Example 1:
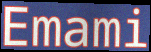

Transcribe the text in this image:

Emami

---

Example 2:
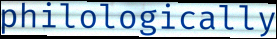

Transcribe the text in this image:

philologically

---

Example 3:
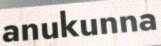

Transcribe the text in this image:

anukunna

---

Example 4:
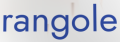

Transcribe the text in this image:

rangole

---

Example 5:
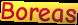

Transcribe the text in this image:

Boreas